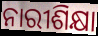
ନାରୀଶିକ୍ଷା